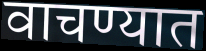
वाचण्यात